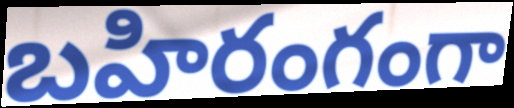
బహిరంగంగా